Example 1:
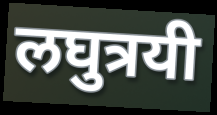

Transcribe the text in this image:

लघुत्रयी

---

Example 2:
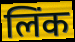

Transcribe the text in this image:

लिंक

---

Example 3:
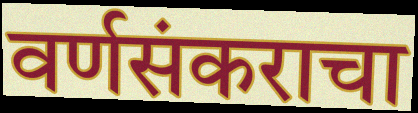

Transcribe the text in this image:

वर्णसंकराचा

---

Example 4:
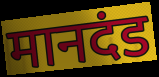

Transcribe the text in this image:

मानदंड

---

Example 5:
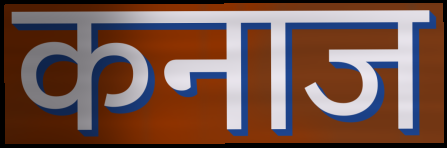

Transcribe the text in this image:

कनाज